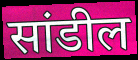
सांडील